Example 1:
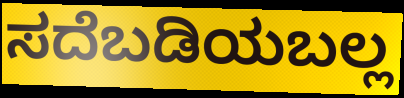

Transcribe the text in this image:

ಸದೆಬಡಿಯಬಲ್ಲ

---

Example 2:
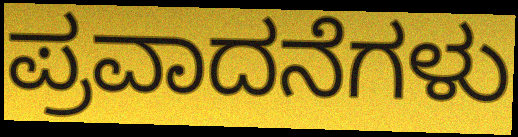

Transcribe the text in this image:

ಪ್ರವಾದನೆಗಳು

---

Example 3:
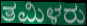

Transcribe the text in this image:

ತಮಿಳರು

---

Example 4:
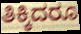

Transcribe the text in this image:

ತಿಕ್ಕಿದರೂ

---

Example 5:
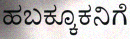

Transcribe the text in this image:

ಹಬಕ್ಕೂಕನಿಗೆ